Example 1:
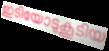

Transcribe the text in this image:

ഇടിയോടുകൂടിയ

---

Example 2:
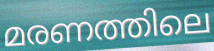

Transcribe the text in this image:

മരണത്തിലെ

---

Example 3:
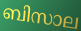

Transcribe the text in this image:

ബിസാല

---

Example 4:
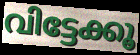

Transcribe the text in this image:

വിട്ടേക്കൂ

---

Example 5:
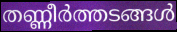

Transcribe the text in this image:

തണ്ണീർത്തടങ്ങൾ